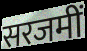
सरजमीं